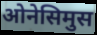
ओनेसिमुस